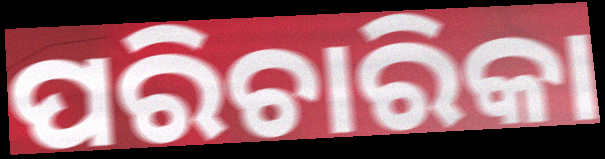
ପରିଚାରିକା